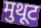
मुथूट